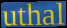
uthal